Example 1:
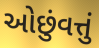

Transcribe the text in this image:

ઓછુંવત્તું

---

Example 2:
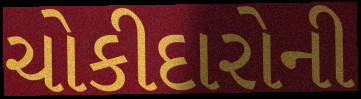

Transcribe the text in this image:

ચોકીદારોની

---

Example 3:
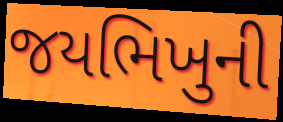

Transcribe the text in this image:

જયભિખુની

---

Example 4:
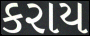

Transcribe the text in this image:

કરાય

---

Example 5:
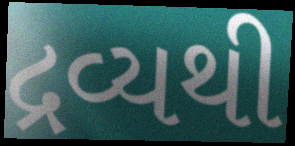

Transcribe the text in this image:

દ્રવ્યથી